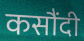
कसौंदी